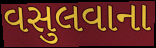
વસુલવાના